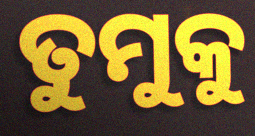
ତୁମୁକୁ